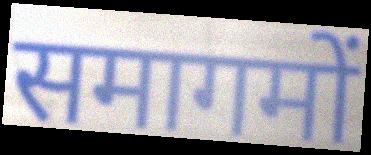
समागमों